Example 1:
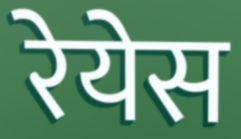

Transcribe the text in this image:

रेयेस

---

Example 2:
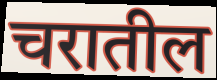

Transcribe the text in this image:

चरातील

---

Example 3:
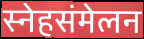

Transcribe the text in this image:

स्नेहसंमेलन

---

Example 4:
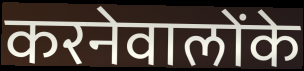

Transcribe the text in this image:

करनेवालोंके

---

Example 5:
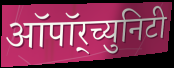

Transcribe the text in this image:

ऑपॉर्च्युनिटी